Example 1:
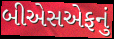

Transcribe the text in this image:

બીએસએફનું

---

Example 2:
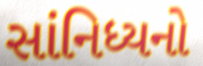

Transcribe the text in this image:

સાંનિધ્યનો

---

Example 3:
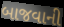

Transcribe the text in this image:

બાજવાની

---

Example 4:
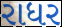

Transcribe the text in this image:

રાધર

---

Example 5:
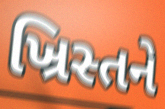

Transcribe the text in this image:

ખ્રિસ્તને